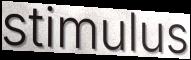
stimulus